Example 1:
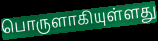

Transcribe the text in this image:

பொருளாகியுள்ளது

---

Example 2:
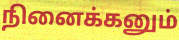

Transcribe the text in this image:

நினைக்கனும்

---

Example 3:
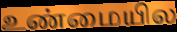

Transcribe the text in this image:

உண்மையில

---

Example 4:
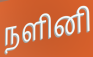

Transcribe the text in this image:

நளினி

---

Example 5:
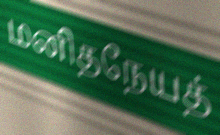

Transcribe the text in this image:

மனிதநேயத்